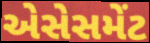
એસેસમેંટ